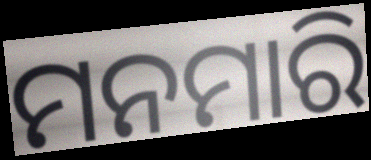
ମନମାରି